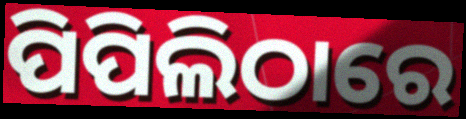
ପିପିଲିଠାରେ